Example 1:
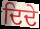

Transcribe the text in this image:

ਦਿਦੇ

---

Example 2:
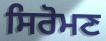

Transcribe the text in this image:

ਸਿਰੋਮਣ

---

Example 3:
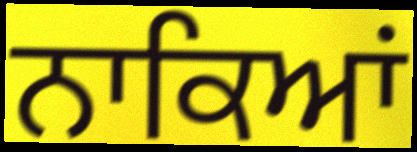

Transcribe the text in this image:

ਨਾਕਿਆਂ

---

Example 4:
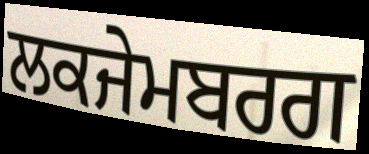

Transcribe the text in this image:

ਲਕਜੇਮਬਰਗ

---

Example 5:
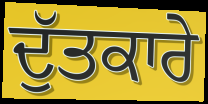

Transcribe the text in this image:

ਦੁੱਤਕਾਰੇ